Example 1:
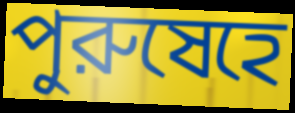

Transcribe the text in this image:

পুৰুষেহে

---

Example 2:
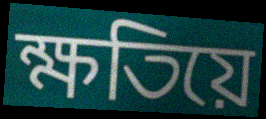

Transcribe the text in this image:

ক্ষতিয়ে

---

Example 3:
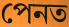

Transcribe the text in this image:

পেনত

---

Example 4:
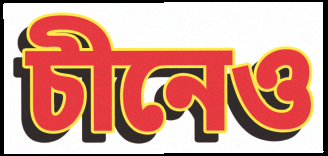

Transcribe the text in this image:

চীনেও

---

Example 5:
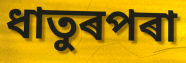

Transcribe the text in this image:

ধাতুৰপৰা